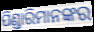
ପିଣ୍ଡାରିମାନଙ୍କର